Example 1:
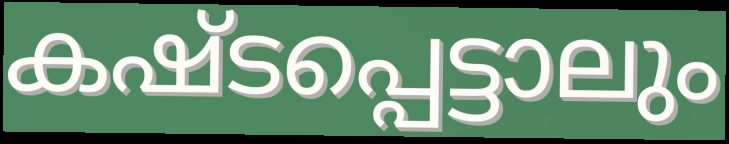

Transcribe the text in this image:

കഷ്ടപ്പെട്ടാലും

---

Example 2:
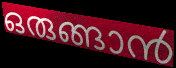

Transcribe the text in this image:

ഒരുങ്ങാൻ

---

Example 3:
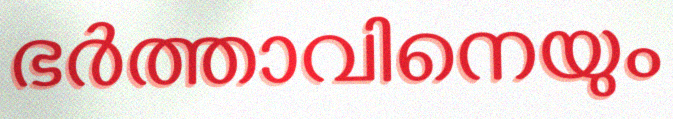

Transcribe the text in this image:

ഭർത്താവിനെയും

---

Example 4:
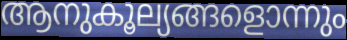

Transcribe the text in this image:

ആനുകൂല്യങ്ങളൊന്നും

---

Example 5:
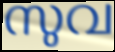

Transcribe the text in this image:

സുവ